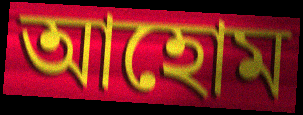
আহোম